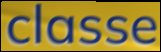
classe